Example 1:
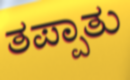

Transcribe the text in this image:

ತಪ್ಪಾತು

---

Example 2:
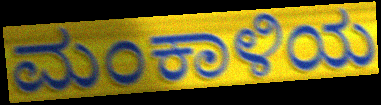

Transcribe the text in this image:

ಮಂಕಾಳಿಯ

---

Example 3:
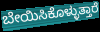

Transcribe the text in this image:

ಬೇಯಿಸಿಕೊಳ್ಳುತ್ತಾರೆ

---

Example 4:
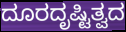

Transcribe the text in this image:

ದೂರದೃಷ್ಟಿತ್ವದ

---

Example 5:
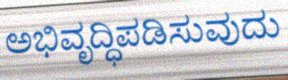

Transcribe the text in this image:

ಅಭಿವೃದ್ಧಿಪಡಿಸುವುದು